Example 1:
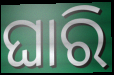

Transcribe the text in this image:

ଘାରି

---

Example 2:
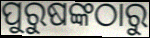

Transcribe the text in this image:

ପୁରୁଷଙ୍କଠାରୁ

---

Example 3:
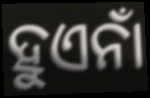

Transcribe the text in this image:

ହୁଏନାଁ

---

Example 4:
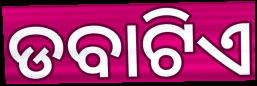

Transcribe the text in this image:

ଡବାଟିଏ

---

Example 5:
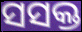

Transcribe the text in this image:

ସସକ୍ତ